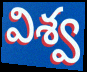
విశ్వ